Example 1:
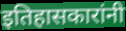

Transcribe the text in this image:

इतिहासकारांनी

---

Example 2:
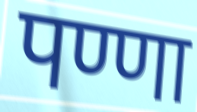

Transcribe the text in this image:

पण्णा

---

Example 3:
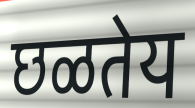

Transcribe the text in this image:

छळतेय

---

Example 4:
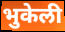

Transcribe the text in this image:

भुकेली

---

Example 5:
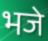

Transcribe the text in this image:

भजे